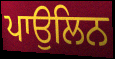
ਪਾਉਲਿਨ